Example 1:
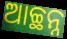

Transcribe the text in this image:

ଆଚ୍ଛନ୍ନ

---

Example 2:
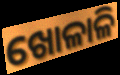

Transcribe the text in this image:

ଖୋଳାଳି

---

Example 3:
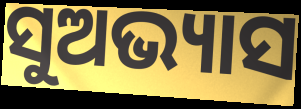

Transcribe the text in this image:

ସୁଅଭ୍ୟାସ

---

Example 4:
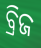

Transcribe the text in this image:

ବ୍ରିଜ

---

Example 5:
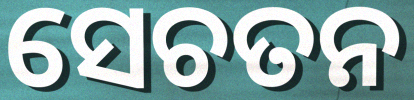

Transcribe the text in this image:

ସେଚତନ